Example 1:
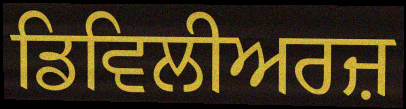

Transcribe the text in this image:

ਡਿਵਿਲੀਅਰਜ਼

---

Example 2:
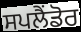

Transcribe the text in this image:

ਸਪਲੈਂਡੋਰ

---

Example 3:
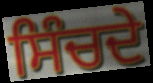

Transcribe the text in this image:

ਸਿੰਚਦੇ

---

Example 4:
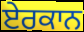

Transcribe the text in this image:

ਏਰਕਾਨ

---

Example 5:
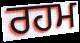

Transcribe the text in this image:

ਰਹਮ